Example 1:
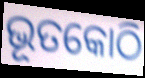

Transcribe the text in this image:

ଭୂତକୋଠି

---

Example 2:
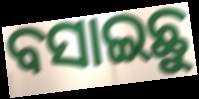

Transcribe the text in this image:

ବସାଇଛୁ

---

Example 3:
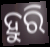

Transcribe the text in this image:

ହୁରି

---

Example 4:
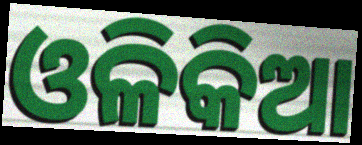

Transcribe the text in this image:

ଓଳିକିଆ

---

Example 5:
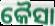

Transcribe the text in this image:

କୈସା